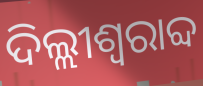
ଦିଲ୍ଲୀଶ୍ୱରାବ୍ଦ